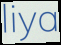
liya